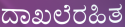
ದಾಖಲೆರಹಿತ